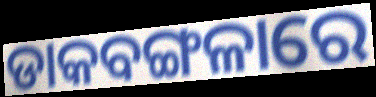
ଡାକବଙ୍ଗଳାରେ